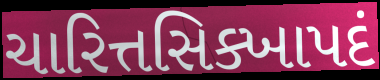
ચારિત્તસિક્ખાપદં